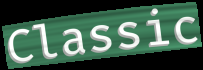
Classic